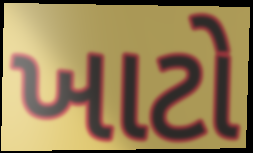
ખાટો